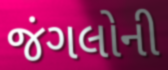
જંગલોની